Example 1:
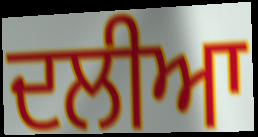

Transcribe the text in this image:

ਦਲੀਆ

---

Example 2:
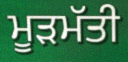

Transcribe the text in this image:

ਮੂੜਮੱਤੀ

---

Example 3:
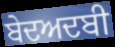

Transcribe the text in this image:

ਬੇਦਅਦਬੀ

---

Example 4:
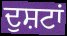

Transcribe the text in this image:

ਦੁਸ਼ਟਾਂ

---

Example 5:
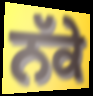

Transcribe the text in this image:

ਨੱਕੇ